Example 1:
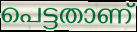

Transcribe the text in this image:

പെട്ടതാണ്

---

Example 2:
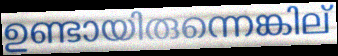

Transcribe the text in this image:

ഉണ്ടായിരുന്നെങ്കില്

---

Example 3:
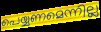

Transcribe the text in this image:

പെയ്യണമെന്നില്ല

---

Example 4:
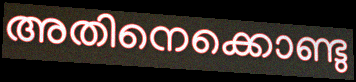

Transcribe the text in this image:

അതിനെക്കൊണ്ടു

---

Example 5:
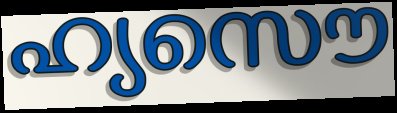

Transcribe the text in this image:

ഹ്യസൌ